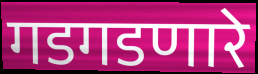
गडगडणारे